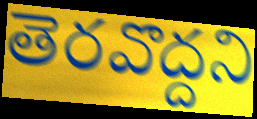
తెరవొద్దని